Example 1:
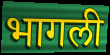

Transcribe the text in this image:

भागली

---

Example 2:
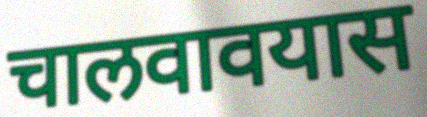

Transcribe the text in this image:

चालवावयास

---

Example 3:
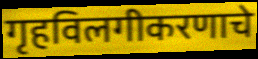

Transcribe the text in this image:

गृहविलगीकरणाचे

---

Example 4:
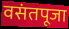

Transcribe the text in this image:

वसंतपूजा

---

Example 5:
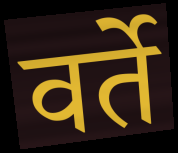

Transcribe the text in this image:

वर्ते